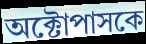
অক্টোপাসকে